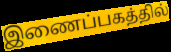
இணைப்பகத்தில்